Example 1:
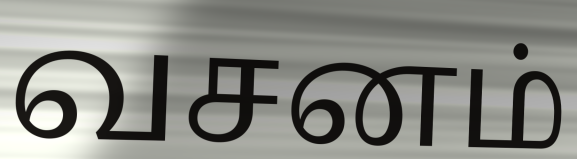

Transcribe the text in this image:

வசனம்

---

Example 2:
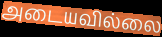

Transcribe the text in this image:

அடையவில்லை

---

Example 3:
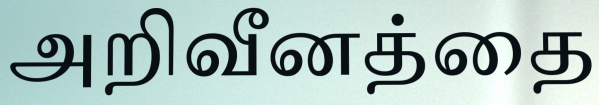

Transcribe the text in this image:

அறிவீனத்தை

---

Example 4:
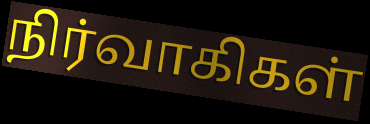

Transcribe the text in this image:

நிர்வாகிகள்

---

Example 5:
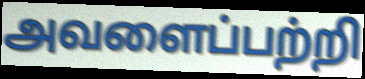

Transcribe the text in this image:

அவளைப்பற்றி